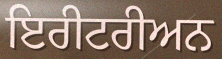
ਇਰੀਟਰੀਅਨ